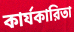
কার্যকারিতা